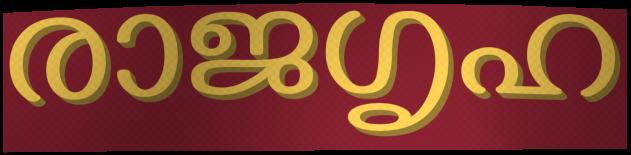
രാജഗൃഹ